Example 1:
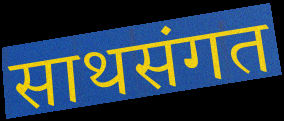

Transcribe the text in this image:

साथसंगत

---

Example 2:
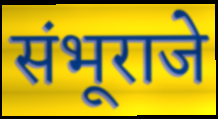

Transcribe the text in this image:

संभूराजे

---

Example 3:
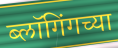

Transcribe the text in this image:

ब्लॉगिंगच्या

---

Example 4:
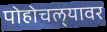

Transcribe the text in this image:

पोहोचल्यावर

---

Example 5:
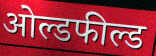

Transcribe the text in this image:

ओल्डफील्ड